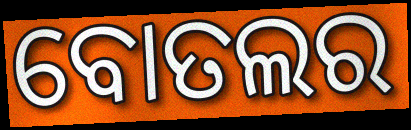
ବୋତଲର